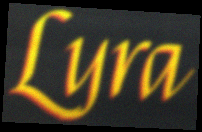
Lyra